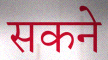
सकने